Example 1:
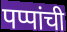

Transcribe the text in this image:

पप्पांची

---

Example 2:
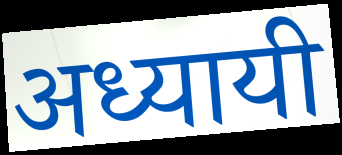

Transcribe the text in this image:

अध्यायी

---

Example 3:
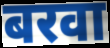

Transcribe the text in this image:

बरवा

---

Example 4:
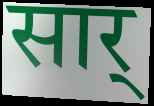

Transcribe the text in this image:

सार्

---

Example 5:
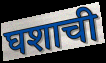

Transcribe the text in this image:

घशाची